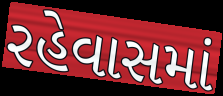
રહેવાસમાં